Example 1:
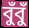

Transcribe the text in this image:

বুঁবুঁ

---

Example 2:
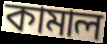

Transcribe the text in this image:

কামাল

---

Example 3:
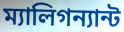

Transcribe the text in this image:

ম্যালিগন্যান্ট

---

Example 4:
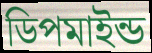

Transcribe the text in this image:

ডিপমাইন্ড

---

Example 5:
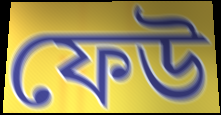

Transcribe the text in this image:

ফেউ